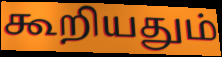
கூறியதும்